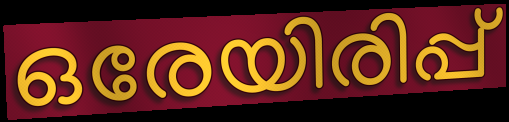
ഒരേയിരിപ്പ്